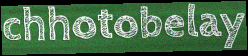
chhotobelay